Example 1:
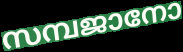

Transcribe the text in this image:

സമ്പജാനോ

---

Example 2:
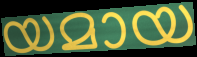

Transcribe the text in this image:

യമായ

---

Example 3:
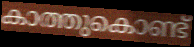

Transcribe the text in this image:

കാത്തുകൊണ്ട്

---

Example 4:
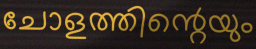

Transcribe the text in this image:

ചോളത്തിന്റെയും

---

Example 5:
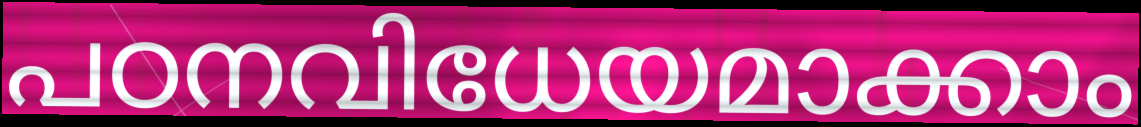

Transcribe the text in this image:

പഠനവിധേയമാക്കാം